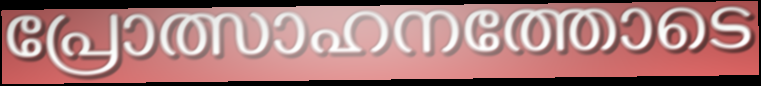
പ്രോത്സാഹനത്തോടെ